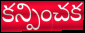
కన్పించక